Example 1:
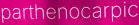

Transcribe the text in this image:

parthenocarpic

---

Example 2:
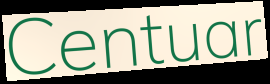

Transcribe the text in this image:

Centuar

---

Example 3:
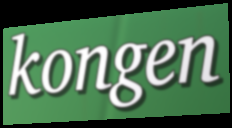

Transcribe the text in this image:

kongen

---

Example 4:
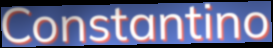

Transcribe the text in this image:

Constantino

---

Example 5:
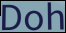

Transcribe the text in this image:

Doh